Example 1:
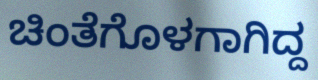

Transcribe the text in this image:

ಚಿಂತೆಗೊಳಗಾಗಿದ್ದ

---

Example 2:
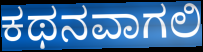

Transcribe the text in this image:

ಕಥನವಾಗಲಿ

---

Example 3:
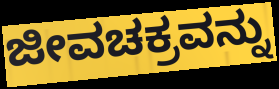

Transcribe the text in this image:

ಜೀವಚಕ್ರವನ್ನು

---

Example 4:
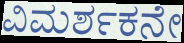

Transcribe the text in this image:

ವಿಮರ್ಶಕನೇ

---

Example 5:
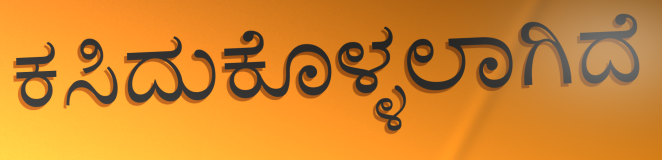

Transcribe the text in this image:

ಕಸಿದುಕೊಳ್ಳಲಾಗಿದೆ